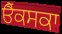
ਓੈਕਸਕਾ